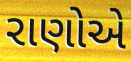
રાણોએ